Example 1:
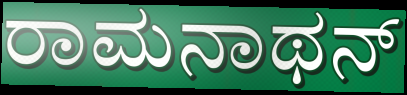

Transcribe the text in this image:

ರಾಮನಾಥನ್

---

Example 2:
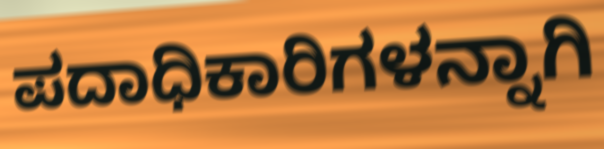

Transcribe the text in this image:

ಪದಾಧಿಕಾರಿಗಳನ್ನಾಗಿ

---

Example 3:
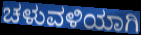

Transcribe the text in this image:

ಚಳುವಳಿಯಾಗಿ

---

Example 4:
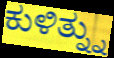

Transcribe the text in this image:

ಕುಳಿತ್ನ್ನು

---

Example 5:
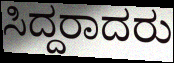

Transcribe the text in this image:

ಸಿದ್ದರಾದರು